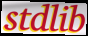
stdlib